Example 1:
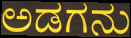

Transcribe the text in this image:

ಅಡಗನು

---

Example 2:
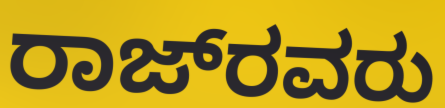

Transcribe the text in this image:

ರಾಜ್‌ರವರು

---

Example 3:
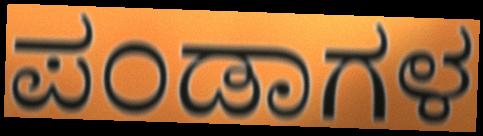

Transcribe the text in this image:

ಪಂಡಾಗಳ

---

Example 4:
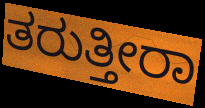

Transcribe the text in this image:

ತರುತ್ತೀರಾ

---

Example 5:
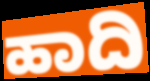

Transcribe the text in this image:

ಹಾದಿ